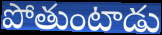
పోతుంటాడు